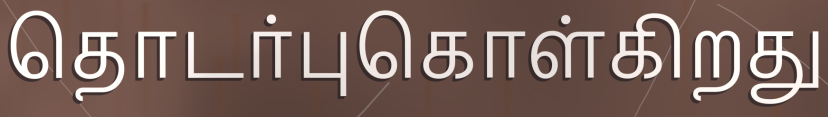
தொடர்புகொள்கிறது